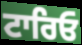
ਟਾਰਿਓ